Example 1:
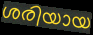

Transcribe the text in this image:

ശരിയായ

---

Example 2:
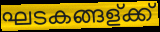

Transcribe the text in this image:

ഘടകങ്ങള്ക്ക്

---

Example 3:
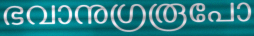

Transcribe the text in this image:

ഭവാനുഗ്രരൂപോ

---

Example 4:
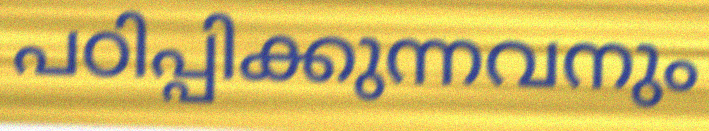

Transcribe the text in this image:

പഠിപ്പിക്കുന്നവനും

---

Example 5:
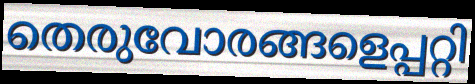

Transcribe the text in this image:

തെരുവോരങ്ങളെപ്പറ്റി